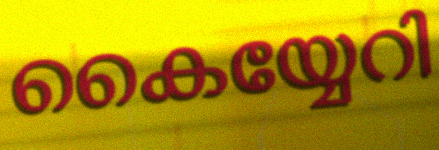
കൈയ്യേറി